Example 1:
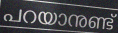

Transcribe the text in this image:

പറയാനുണ്ട്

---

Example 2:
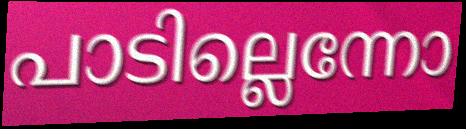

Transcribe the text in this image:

പാടില്ലെന്നോ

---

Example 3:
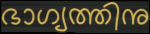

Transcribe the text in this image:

ഭാഗ്യത്തിനു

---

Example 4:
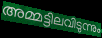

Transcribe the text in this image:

അമ്മട്ടിലവിടുന്നും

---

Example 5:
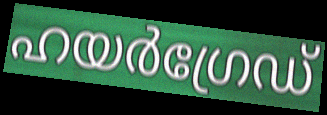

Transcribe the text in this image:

ഹയർഗ്രേഡ്